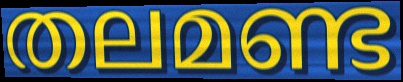
തലമണ്ട